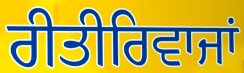
ਰੀਤੀਰਿਵਾਜਾਂ